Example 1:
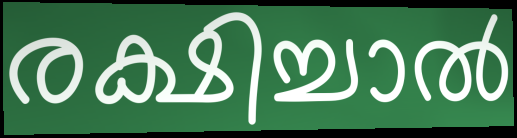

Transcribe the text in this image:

രക്ഷിച്ചാൽ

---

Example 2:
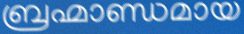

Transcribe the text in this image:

ബ്രഹ്മാണ്ഡമായ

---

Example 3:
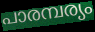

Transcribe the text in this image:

പാരമ്പര്യം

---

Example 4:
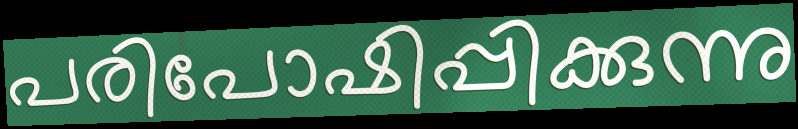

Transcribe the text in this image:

പരിപോഷിപ്പിക്കുന്നു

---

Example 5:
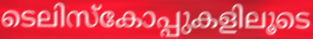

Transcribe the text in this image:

ടെലിസ്കോപ്പുകളിലൂടെ